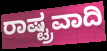
ರಾಷ್ಟ್ರವಾದಿ